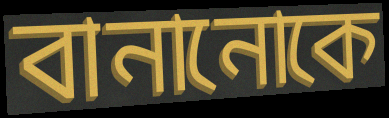
বানানোকে